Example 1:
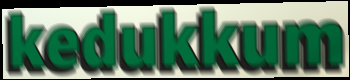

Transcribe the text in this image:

kedukkum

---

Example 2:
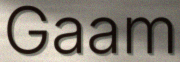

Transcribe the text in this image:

Gaam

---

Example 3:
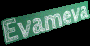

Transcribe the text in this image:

Evameva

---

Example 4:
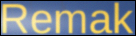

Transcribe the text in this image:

Remak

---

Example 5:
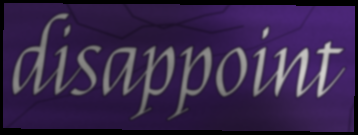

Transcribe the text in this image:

disappoint